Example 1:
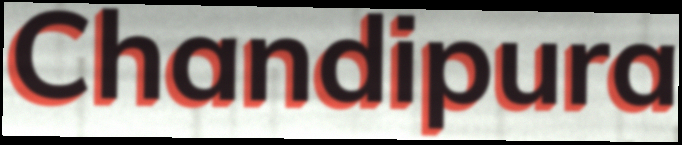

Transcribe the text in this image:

Chandipura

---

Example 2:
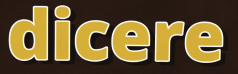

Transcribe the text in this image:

dicere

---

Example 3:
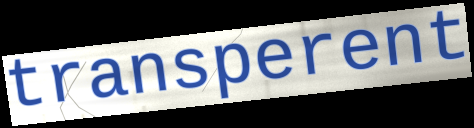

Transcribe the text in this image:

transperent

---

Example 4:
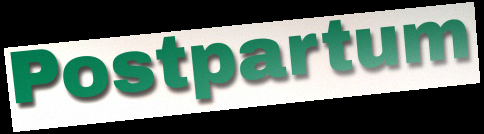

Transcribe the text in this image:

Postpartum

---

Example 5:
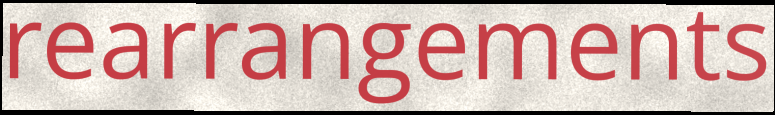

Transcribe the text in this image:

rearrangements